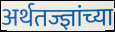
अर्थतज्ज्ञांच्या